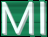
MI